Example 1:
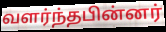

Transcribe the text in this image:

வளர்ந்தபின்னர்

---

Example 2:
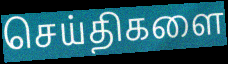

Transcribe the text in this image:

செய்திகளை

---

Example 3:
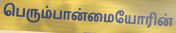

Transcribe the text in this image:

பெரும்பான்மையோரின்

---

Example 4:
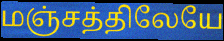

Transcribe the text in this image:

மஞ்சத்திலேயே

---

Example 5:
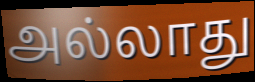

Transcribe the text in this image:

அல்லாது